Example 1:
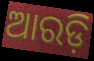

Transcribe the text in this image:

ଆରଡ଼ି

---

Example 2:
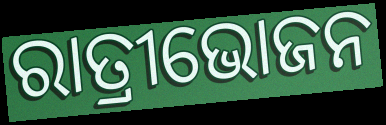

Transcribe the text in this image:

ରାତ୍ରୀଭୋଜନ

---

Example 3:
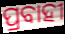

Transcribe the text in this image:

ପ୍ରବାହୀ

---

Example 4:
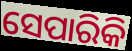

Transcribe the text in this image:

ସେପାରିକି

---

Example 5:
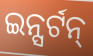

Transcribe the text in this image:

ଇନ୍ସର୍ଟନ୍